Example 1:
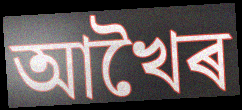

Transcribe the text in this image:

আখৈৰ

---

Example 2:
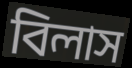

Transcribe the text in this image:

বিলাস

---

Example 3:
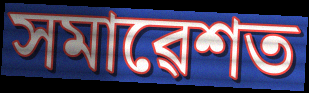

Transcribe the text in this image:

সমাৱেশত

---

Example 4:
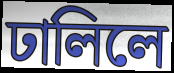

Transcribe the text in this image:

ঢালিলে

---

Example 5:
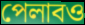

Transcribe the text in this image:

পেলাবও